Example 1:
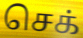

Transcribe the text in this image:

செக்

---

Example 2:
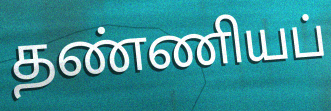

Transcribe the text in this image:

தண்ணியப்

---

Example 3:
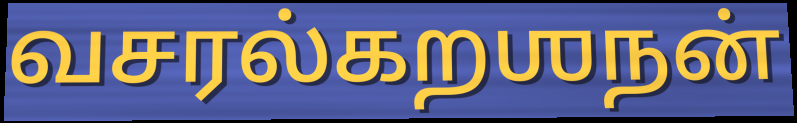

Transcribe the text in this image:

வசரல்கறஶநன்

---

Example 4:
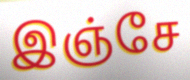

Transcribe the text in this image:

இஞ்சே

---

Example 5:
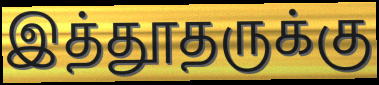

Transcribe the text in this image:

இத்தூதருக்கு